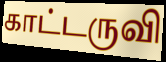
காட்டருவி